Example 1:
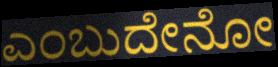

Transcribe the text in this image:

ಎಂಬುದೇನೋ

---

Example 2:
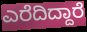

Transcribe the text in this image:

ಎರೆದಿದ್ದಾರೆ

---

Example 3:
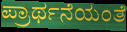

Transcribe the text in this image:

ಪ್ರಾರ್ಥನೆಯಂತೆ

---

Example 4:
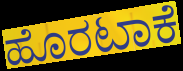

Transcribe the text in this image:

ಹೊರಟಾಕೆ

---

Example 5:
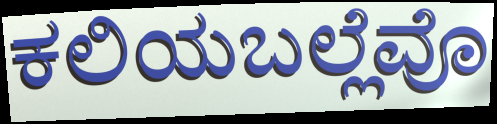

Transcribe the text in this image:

ಕಲಿಯಬಲ್ಲೆವೊ